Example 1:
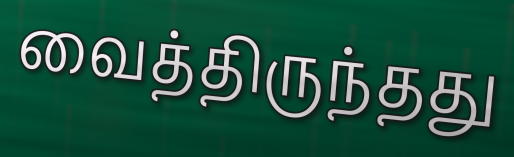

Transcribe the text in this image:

வைத்திருந்தது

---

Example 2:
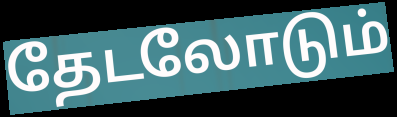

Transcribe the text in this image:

தேடலோடும்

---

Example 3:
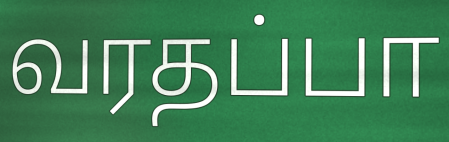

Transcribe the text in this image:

வரதப்பா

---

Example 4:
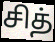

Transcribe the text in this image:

சித்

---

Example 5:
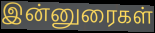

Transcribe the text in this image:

இன்னுரைகள்